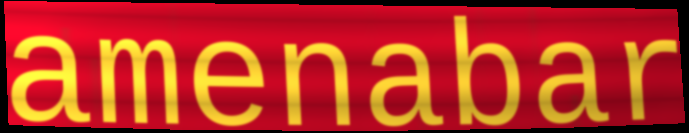
amenabar